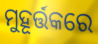
ମୁହୂର୍ତ୍ତକରେ